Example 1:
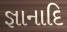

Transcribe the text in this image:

જ્ઞાનાદિ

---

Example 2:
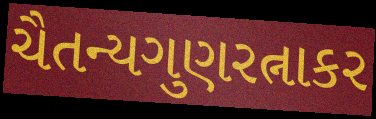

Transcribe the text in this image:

ચૈતન્યગુણરત્નાકર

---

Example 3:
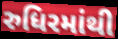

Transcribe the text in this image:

રુધિરમાંથી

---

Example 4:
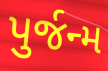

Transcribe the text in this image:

પુર્જન્મ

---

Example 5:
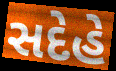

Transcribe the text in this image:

સદેહે